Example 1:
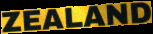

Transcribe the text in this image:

ZEALAND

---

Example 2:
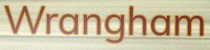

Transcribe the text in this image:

Wrangham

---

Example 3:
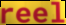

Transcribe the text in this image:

reel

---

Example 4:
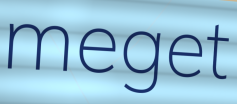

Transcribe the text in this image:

meget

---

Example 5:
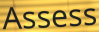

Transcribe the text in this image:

Assess